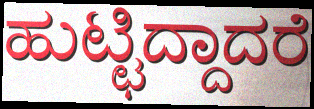
ಹುಟ್ಟಿದ್ದಾದರೆ